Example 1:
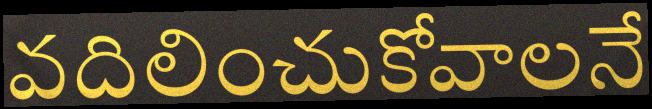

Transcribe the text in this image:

వదిలించుకోవాలనే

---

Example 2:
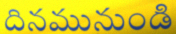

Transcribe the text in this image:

దినమునుండి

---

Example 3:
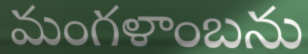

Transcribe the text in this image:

మంగళాంబను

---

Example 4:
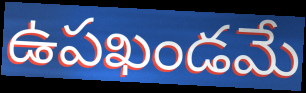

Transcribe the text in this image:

ఉపఖండమే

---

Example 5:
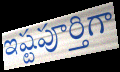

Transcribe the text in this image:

ఇష్టపూర్తిగా